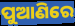
ପୁଆଣିରେ